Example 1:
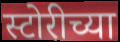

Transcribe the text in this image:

स्टोरीच्या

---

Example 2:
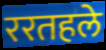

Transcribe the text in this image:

ररतहले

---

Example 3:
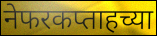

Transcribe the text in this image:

नेफरकप्ताहच्या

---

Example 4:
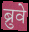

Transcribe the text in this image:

ब्रुवे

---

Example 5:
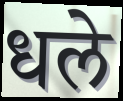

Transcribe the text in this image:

धले